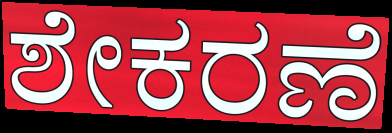
ಶೇಕರಣೆ